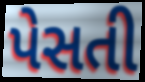
પેસતી